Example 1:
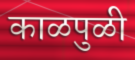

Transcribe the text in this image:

काळपुळी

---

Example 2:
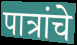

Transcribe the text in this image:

पात्रांचे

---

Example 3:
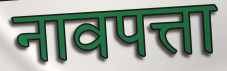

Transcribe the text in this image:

नावपत्ता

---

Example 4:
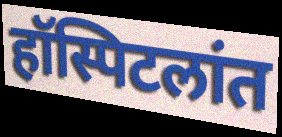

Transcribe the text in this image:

हॉस्पिटलांत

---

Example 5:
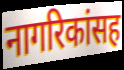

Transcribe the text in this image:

नागरिकांसह